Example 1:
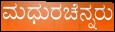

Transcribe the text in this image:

ಮಧುರಚೆನ್ನರು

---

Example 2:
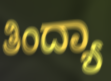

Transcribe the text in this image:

ತಿಂದ್ಯಾ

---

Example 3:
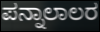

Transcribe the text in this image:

ಪನ್ನಾಲಾಲರ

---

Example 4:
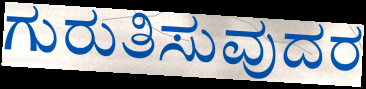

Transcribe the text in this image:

ಗುರುತಿಸುವುದರ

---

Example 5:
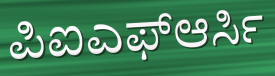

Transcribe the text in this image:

ಪಿಐಎಫ್ಆರ್ಸಿ